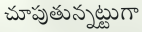
చూపుతున్నట్టుగా